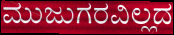
ಮುಜುಗರವಿಲ್ಲದ